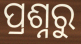
ପ୍ରଶ୍ନରୁ